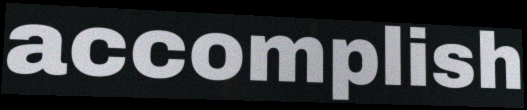
accomplish